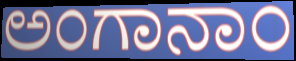
ಅಂಗಾನಾಂ